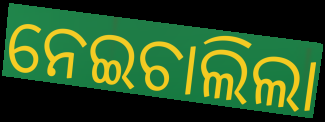
ନେଇଚାଲିଲା